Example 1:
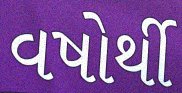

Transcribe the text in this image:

વષોર્થી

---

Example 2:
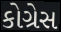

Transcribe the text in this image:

કોગ્રેસ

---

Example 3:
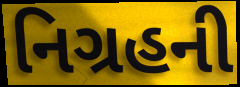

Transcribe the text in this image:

નિગ્રહની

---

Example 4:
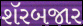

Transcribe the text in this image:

શૅરબજાર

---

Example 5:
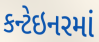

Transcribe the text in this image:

કન્ટેઇનરમાં